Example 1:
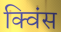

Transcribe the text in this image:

क्विंस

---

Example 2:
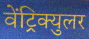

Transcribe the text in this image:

वेंट्रिक्युलर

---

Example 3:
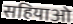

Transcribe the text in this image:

सहियाओ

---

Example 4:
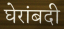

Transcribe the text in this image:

घेरांबदी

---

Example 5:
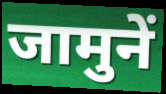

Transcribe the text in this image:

जामुनें